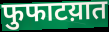
फुफाटय़ात